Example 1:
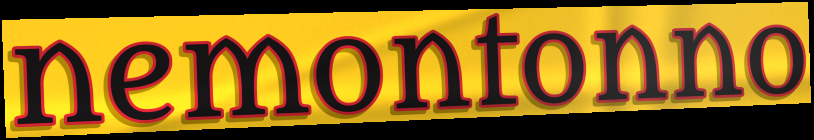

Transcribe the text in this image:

nemontonno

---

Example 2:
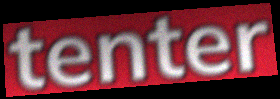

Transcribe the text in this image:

tenter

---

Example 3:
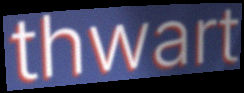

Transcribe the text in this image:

thwart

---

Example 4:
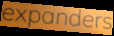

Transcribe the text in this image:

expanders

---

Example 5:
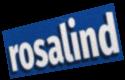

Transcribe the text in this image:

rosalind